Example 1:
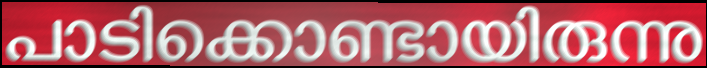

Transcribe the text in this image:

പാടിക്കൊണ്ടായിരുന്നു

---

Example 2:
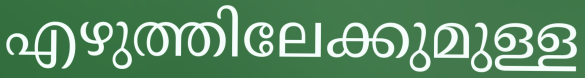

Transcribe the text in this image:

എഴുത്തിലേക്കുമുള്ള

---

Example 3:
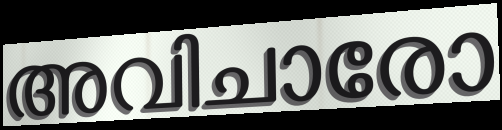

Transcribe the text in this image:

അവിചാരോ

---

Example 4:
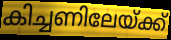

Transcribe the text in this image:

കിച്ചണിലേയ്ക്ക്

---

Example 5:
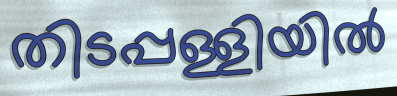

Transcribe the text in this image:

തിടപ്പള്ളിയിൽ